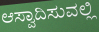
ಆಸ್ವಾದಿಸುವಲ್ಲಿ